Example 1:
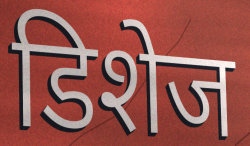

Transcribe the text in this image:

डिशेज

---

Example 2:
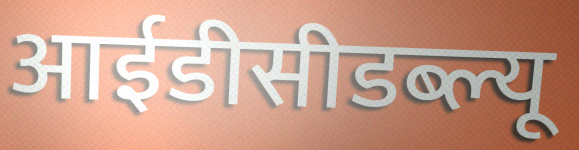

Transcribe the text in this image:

आईडीसीडब्ल्यू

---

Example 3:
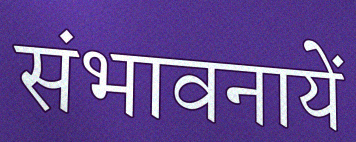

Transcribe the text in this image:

संभावनायें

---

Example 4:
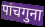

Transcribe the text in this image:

पांचगुना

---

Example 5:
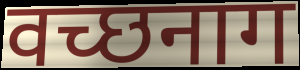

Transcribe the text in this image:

वच्छनाग